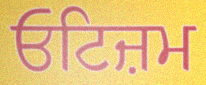
ਓਟਿਜ਼ਮ